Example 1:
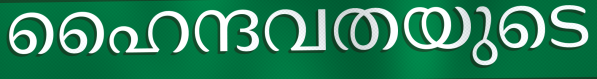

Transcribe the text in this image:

ഹൈന്ദവതയുടെ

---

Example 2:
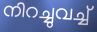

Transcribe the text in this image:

നിറച്ചുവച്ച്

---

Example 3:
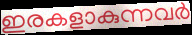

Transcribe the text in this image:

ഇരകളാകുന്നവർ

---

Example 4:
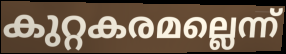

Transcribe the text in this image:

കുറ്റകരമല്ലെന്ന്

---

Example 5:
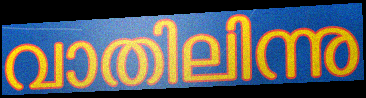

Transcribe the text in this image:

വാതിലിന്നു